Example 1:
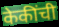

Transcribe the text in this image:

केकींची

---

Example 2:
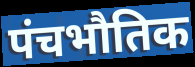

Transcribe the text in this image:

पंचभौतिक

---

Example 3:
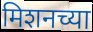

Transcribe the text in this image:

मिशनच्या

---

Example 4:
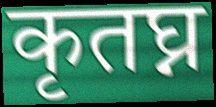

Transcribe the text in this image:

कृतघ्न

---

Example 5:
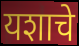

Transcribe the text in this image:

यशाचे